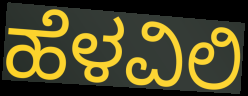
ಹೆಳವಿಲಿ